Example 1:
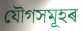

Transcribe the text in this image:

যৌগসমূহৰ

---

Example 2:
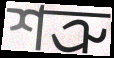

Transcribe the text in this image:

শত্ৰু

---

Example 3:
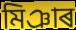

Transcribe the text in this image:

মিঞাৰ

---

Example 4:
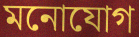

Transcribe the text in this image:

মনোযোগ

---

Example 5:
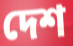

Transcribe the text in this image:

দেশ